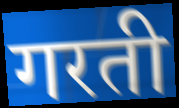
गरती